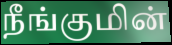
நீங்குமின்